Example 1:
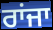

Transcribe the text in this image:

ਰਾਂਜਾ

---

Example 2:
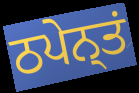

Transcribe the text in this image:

ਠਪੇਨ੍ਤਂ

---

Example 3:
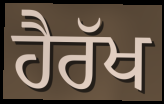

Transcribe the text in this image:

ਹੈਰੱਖ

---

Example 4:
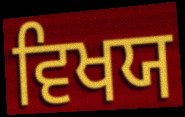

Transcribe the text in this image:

ਵਿਖਯ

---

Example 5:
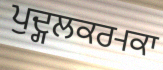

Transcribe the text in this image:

ਪੁਦ੍ਗਲਕਰ੍ਮਕਾ